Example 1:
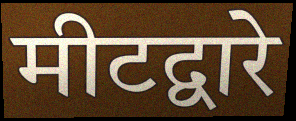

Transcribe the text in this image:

मीटद्वारे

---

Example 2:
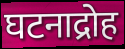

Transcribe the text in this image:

घटनाद्रोह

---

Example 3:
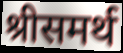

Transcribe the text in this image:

श्रीसमर्थ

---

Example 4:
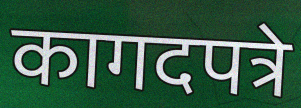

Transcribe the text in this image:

कागदपत्रे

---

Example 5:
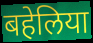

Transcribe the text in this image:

बहेलिया